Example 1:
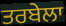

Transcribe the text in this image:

ਤਰਬੇਲਾ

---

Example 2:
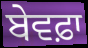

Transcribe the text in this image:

ਬੇਵਫ਼ਾ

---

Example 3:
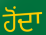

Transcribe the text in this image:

ਹੋਂਦਾ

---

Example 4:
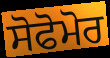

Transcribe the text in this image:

ਸੋਫੋਮੋਰ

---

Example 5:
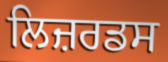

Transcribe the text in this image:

ਲਿਜ਼ਰਡਸ